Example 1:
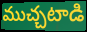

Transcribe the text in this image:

ముచ్చటాడి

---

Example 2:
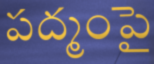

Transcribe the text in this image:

పద్మంపై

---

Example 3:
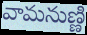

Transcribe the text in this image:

వామనుణ్ణి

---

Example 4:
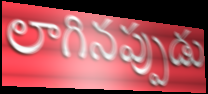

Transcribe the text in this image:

లాగినప్పుడు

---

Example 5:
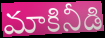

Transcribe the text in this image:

మాకినీడి